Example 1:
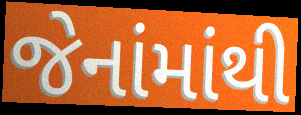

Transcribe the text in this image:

જેનાંમાંથી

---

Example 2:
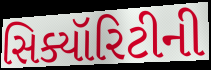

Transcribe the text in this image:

સિક્યૉરિટીની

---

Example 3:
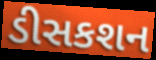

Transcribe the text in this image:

ડીસકશન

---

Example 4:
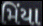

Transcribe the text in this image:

મિંયા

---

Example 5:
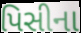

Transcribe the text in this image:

પિસીના